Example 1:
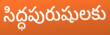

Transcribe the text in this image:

సిద్ధపురుషులకు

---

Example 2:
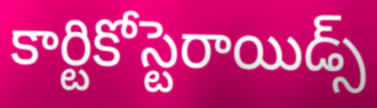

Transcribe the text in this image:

కార్టికోస్టెరాయిడ్స్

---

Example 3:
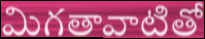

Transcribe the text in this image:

మిగతావాటితో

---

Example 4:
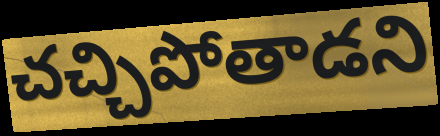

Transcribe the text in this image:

చచ్చిపోతాడని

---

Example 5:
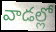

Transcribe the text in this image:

వాడల్లో